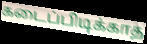
கடைப்பிடிக்காத